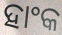
ହାଂକ